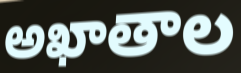
అఖాతాల